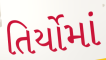
તિર્યોમાં